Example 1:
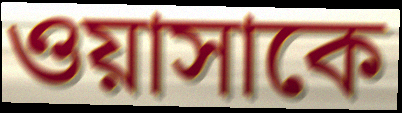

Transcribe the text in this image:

ওয়াসাকে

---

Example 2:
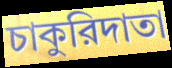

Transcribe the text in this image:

চাকুরিদাতা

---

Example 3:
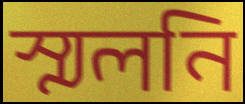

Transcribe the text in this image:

স্মলনি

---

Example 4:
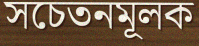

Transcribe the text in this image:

সচেতনমূলক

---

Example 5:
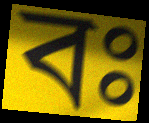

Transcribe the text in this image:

বঃ